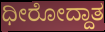
ಧೀರೋದ್ದಾತ